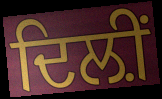
ਦਿਲ਼ੀਂ